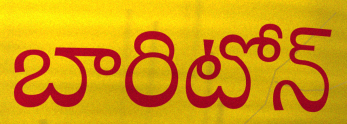
బారిటోన్